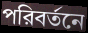
পরিবর্তনে